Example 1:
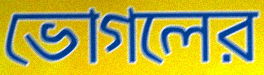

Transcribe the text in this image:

ভোগলের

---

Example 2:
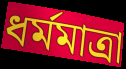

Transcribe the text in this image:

ধর্মমাত্রা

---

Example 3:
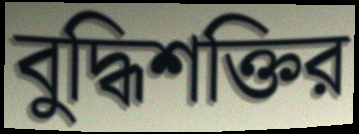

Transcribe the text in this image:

বুদ্ধিশক্তির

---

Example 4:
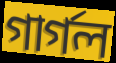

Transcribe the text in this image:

গার্গল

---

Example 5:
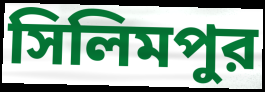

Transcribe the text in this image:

সিলিমপুর